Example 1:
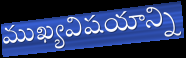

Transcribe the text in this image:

ముఖ్యవిషయాన్ని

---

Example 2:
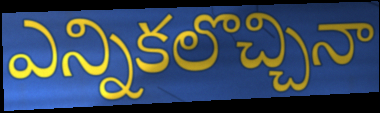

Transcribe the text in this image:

ఎన్నికలొచ్చినా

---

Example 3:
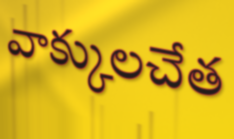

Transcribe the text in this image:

వాక్కులచేత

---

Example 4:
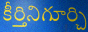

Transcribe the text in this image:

కీర్తినిగూర్చి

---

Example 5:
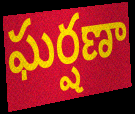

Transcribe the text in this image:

ఘర్షణా